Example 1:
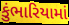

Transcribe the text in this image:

કુંભારિયામાં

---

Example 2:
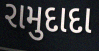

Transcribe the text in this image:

રામુદાદા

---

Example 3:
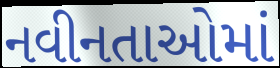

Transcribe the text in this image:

નવીનતાઓમાં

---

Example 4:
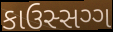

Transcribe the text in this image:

કાઉસ્સગ્ગ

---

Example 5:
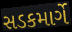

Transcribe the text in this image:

સડકમાર્ગે